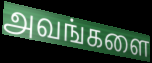
அவங்களை